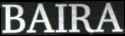
BAIRA